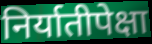
निर्यातीपेक्षा